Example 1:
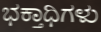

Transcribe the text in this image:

ಭಕ್ತಾಧಿಗಳು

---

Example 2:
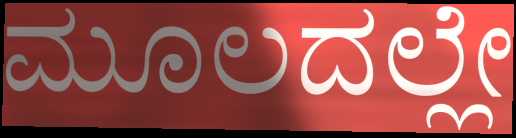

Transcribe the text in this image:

ಮೂಲದಲ್ಲೇ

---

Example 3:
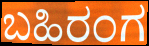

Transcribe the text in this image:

ಬಹಿರಂಗ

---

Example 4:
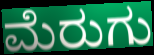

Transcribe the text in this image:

ಮೆರುಗು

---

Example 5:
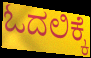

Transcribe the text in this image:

ಓದಲಿಕ್ಕೆ